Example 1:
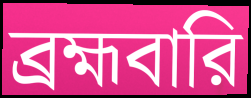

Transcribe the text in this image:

ব্রহ্মবারি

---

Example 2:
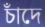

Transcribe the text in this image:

চাঁদে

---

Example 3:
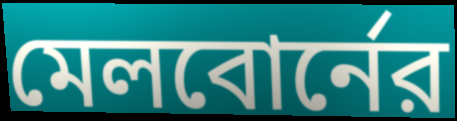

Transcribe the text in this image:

মেলবোর্নের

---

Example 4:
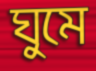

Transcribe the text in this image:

ঘুমে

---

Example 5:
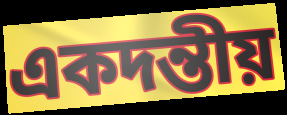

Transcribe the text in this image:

একদন্তীয়